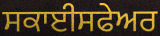
ਸਕਾਈਸਫੇਅਰ